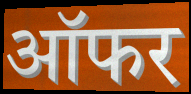
ऑफर